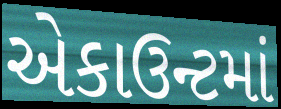
એકાઉન્ટમાં